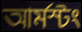
আর্মস্টং